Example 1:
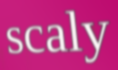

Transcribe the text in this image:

scaly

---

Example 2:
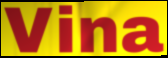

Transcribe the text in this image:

Vina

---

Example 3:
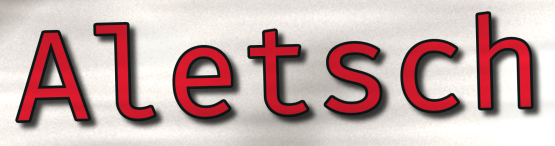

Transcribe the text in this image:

Aletsch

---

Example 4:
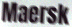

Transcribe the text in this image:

Maersk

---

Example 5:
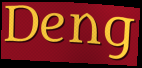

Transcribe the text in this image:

Deng